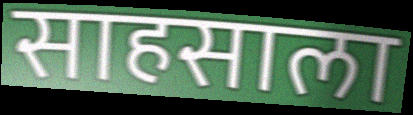
साहसाला